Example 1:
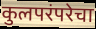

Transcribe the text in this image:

कुलपरंपरेचा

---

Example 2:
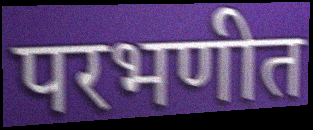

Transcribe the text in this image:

परभणीत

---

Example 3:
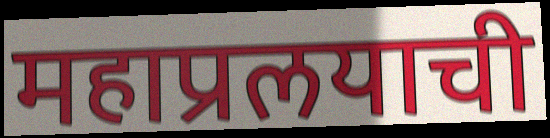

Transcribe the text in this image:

महाप्रलयाची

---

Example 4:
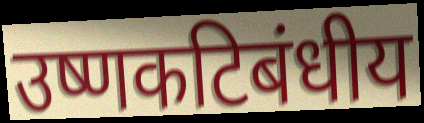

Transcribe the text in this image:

उष्णकटिबंधीय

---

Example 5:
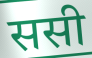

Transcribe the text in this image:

ससी